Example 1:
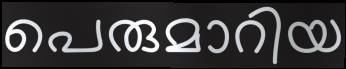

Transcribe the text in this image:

പെരുമാറിയ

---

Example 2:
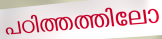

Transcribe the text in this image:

പഠിത്തത്തിലോ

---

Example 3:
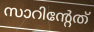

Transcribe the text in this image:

സാറിന്റേത്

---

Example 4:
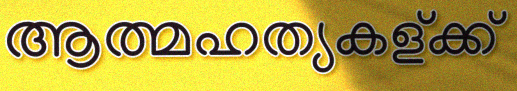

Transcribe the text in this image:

ആത്മഹത്യകള്ക്ക്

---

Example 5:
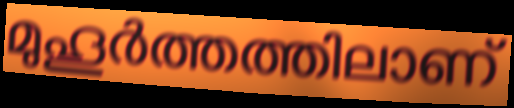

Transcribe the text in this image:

മുഹൂർത്തത്തിലാണ്